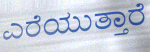
ಎರೆಯುತ್ತಾರೆ